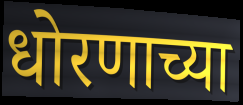
धोरणाच्या